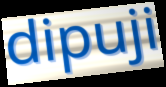
dipuji